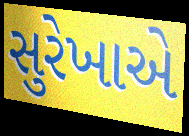
સુરેખાએ